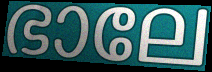
ഭാലേ